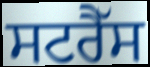
ਸਟਰੈੱਸ